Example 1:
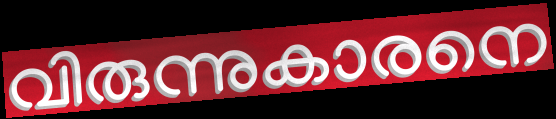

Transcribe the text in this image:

വിരുന്നുകാരനെ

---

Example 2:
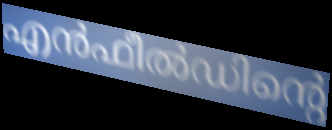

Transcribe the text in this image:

എൻഫീൽഡിന്റെ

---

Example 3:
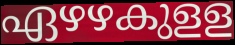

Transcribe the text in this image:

ഏഴഴകുളള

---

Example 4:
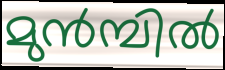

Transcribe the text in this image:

മുൻമ്പിൽ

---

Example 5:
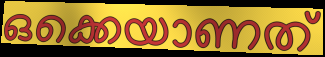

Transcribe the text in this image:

ഒക്കെയാണത്